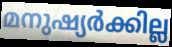
മനുഷ്യർക്കില്ല